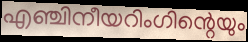
എഞ്ചിനീയറിംഗിന്റെയും